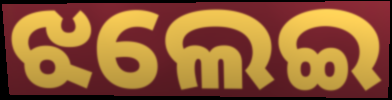
ଝଲେଇ